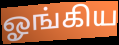
ஓங்கிய